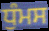
ਧੁੰਮਸ